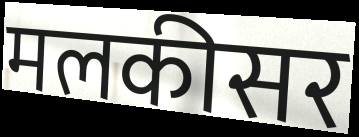
मलकीसर